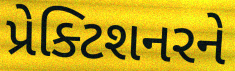
પ્રેક્ટિશનરને